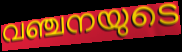
വഞ്ചനയുടെ